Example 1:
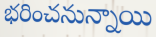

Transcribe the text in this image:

భరించనున్నాయి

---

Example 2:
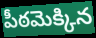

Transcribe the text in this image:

పీఠమెక్కిన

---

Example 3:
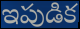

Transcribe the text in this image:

ఇపుడిక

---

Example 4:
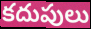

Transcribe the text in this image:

కదుపులు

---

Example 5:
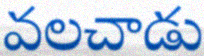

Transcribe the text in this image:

వలచాడు